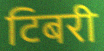
टिबरी